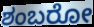
ಶಂಬರೋ